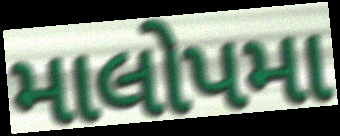
માલોપમા